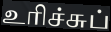
உரிச்சுப்